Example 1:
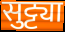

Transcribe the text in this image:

सुट्ट्या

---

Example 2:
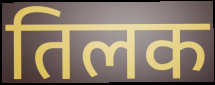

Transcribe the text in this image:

तिलक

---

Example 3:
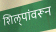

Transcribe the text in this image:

शिल्पांवरून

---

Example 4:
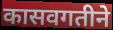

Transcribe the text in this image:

कासवगतीने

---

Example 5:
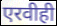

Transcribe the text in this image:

एरवीही